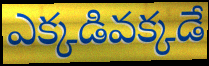
ఎక్కడివక్కడే